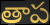
తాప